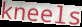
kneels